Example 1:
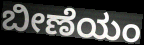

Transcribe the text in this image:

ಬೀಣೆಯಂ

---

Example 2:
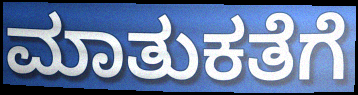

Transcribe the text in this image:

ಮಾತುಕತೆಗೆ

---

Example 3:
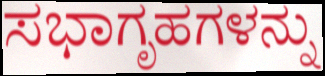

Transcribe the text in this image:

ಸಭಾಗೃಹಗಳನ್ನು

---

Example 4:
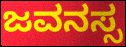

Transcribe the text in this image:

ಜವನಸ್ಸ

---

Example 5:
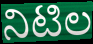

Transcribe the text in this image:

ನಿಟಿಲ